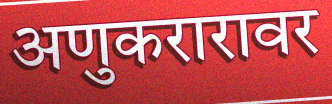
अणुकरारावर